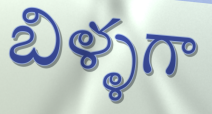
బిళ్ళగా